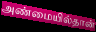
அண்மையில்தான்